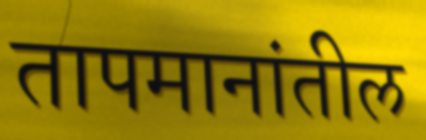
तापमानांतील